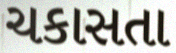
ચકાસતા